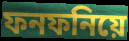
ফনফনিয়ে